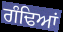
ਗੰਢਿਆਂ